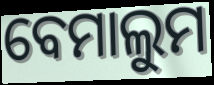
ବେମାଲୁମ